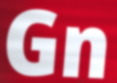
Gn